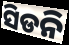
ସିଡନି